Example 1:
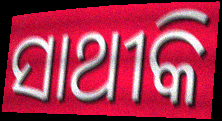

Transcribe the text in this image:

ସାଥୀକି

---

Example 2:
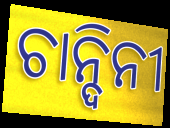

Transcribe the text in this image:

ଚାନ୍ଦିନୀ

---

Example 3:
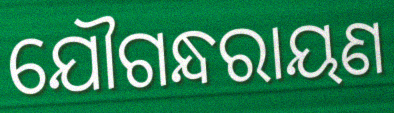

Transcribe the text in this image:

ଯୌଗନ୍ଧରାୟଣ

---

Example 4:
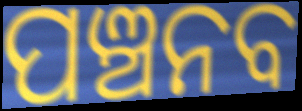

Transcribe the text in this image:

ପଞ୍ଚନବ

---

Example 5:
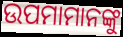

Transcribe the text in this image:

ଉପମାମାନଙ୍କୁ